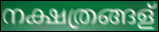
നക്ഷത്രങ്ങള്